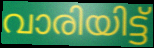
വാരിയിട്ട്